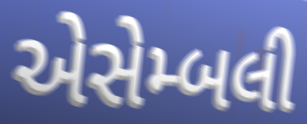
એસેમ્બલી